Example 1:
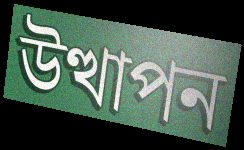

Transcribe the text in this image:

উত্থাপন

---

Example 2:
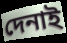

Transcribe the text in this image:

দেনাই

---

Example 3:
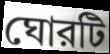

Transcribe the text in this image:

ঘোরটি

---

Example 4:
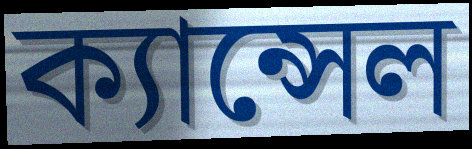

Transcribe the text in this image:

ক্যান্সেল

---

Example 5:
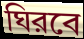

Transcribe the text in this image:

ঘিরবে